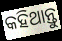
କହିଥାନ୍ତୁ